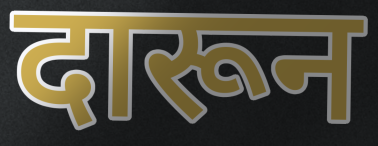
दारून